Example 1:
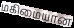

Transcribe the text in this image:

மகிமையான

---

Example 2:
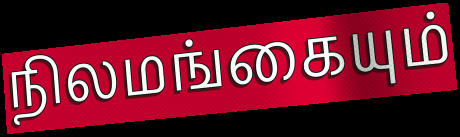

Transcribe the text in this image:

நிலமங்கையும்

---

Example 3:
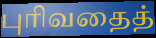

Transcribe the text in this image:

புரிவதைத்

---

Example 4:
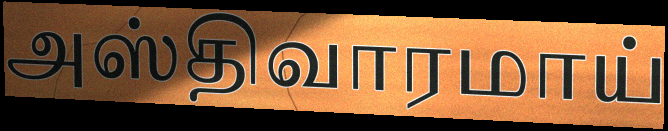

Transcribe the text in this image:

அஸ்திவாரமாய்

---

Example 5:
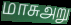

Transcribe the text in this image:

மாசுஅறு